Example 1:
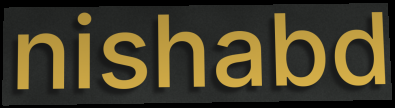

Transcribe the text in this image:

nishabd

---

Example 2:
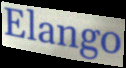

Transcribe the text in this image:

Elango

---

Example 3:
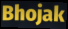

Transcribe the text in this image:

Bhojak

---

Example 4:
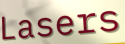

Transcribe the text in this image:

Lasers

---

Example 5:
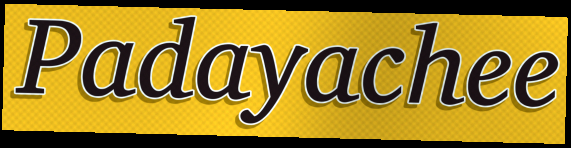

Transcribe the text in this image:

Padayachee